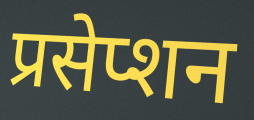
प्रसेप्शन